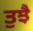
ਤੁਝੈ